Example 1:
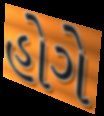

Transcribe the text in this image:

હોગે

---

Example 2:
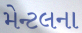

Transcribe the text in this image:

મેન્ટલના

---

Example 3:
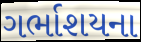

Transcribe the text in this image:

ગર્ભાશયના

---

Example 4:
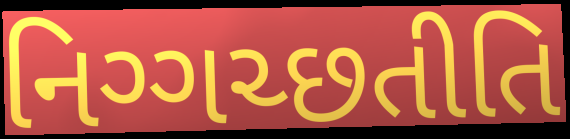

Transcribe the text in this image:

નિગ્ગચ્છતીતિ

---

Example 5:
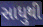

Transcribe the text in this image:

સાધુથી